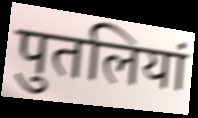
पुतलियां